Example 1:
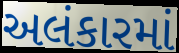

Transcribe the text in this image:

અલંકારમાં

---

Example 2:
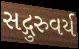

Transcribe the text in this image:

સદ્ગુરુવર્ય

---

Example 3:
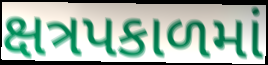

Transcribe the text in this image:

ક્ષત્રપકાળમાં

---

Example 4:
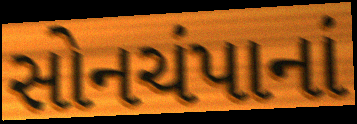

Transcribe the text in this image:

સોનચંપાનાં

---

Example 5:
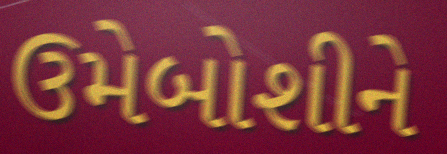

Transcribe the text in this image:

ઉમેબોશીને